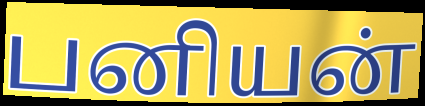
பனியன்